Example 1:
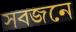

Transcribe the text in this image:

সবজনে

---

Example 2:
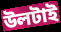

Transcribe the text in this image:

উলটাই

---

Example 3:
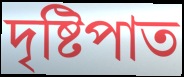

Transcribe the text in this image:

দৃষ্টিপাত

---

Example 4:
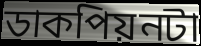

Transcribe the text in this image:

ডাকপিয়নটা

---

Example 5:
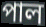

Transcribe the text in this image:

পাল